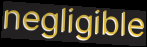
negligible